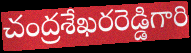
చంద్రశేఖరరెడ్డిగారి